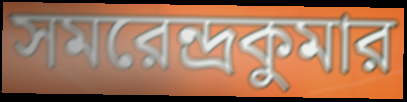
সমরেন্দ্রকুমার